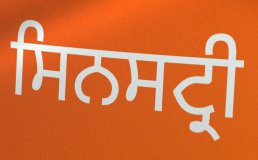
ਸਿਨਸਟ੍ਰੀ